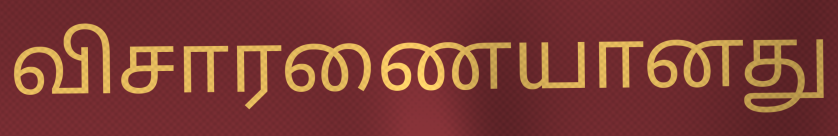
விசாரணையானது